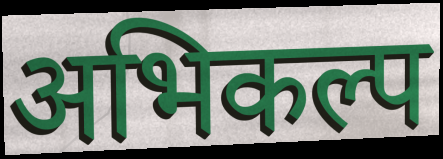
अभिकल्प